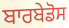
ਬਾਰਬੇਡੋਸ